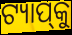
ଟ୍ୟାପ୍‌କୁ